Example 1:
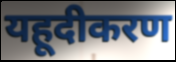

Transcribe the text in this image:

यहूदीकरण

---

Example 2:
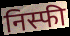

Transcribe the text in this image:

निस्फी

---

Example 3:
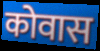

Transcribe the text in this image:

कोवास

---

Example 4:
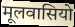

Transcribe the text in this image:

मूलवासियो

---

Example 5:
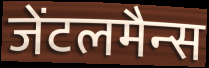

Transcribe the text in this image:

जेंटलमैन्स